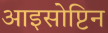
आइसोप्टिन